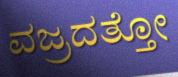
ವಜ್ರದತ್ತೋ